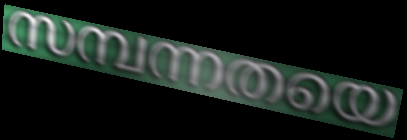
സമ്പന്നതയെ